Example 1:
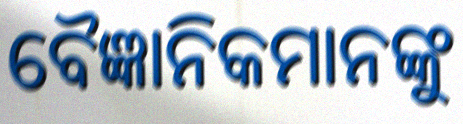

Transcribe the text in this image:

ବୈଜ୍ଞାନିକମାନଙ୍କୁ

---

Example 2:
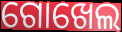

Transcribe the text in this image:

ଗୋଖେଲ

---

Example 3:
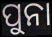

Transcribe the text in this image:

ପୁନା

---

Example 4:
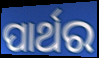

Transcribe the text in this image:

ପାର୍ଥର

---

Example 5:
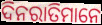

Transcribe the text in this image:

ଦିନରାତିମାନେ